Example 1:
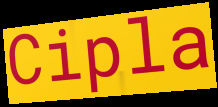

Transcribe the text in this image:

Cipla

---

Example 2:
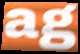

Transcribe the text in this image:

ag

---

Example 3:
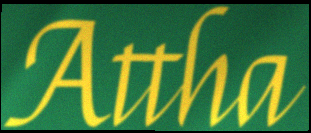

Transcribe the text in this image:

Attha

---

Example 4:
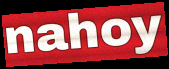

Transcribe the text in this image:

nahoy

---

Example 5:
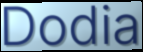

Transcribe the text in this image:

Dodia